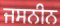
ਜਸਨੀਨ